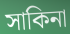
সাকিনা